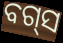
ବଗ୍‌ସ